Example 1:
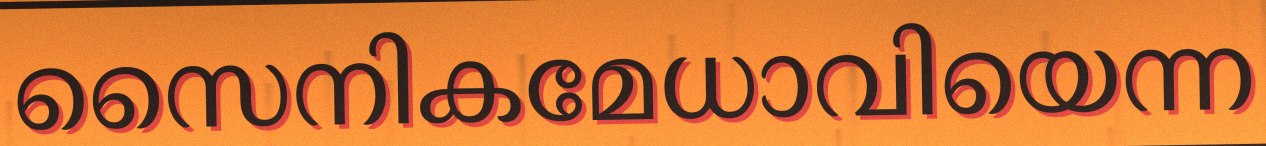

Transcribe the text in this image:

സൈനികമേധാവിയെന്ന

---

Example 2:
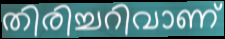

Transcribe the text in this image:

തിരിച്ചറിവാണ്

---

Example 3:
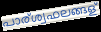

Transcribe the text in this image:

പാര്ശ്വഫലങ്ങള്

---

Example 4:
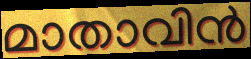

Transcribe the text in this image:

മാതാവിൻ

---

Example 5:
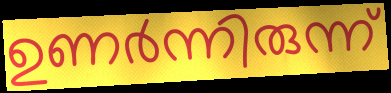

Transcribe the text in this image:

ഉണർന്നിരുന്ന്